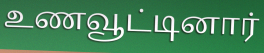
உணவூட்டினார்